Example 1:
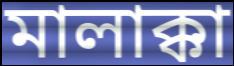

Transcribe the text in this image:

মালাক্কা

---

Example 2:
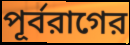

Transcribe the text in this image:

পূর্বরাগের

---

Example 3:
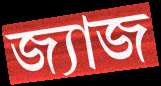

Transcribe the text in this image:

জ্যাজ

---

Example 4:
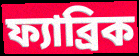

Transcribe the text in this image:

ফ্যাব্রিক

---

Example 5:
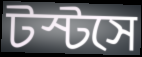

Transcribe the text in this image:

টস্টসে